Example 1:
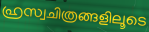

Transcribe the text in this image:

ഹ്രസ്വചിത്രങ്ങളിലൂടെ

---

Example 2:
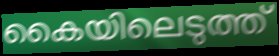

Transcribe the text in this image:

കൈയിലെടുത്ത്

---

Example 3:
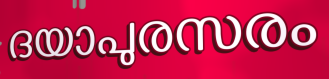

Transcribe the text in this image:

ദയാപുരസരം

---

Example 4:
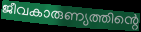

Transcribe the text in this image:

ജീവകാരുണ്യത്തിന്റെ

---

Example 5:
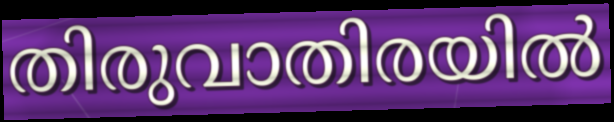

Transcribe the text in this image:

തിരുവാതിരയിൽ